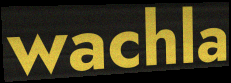
wachla